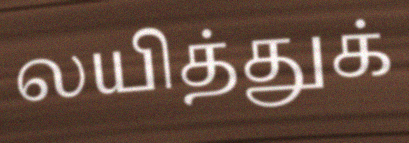
லயித்துக்